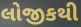
લોજીકથી